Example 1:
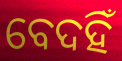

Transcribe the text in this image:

ବେଦହିଁ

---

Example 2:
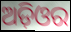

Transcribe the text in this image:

ଅଡ଼ିଓର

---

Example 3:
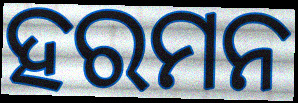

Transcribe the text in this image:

ହରମନ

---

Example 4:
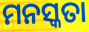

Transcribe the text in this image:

ମନସ୍କତା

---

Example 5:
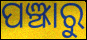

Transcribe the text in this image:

ପଞ୍ଝାରୁ